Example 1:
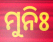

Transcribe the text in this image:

ମୁନିଃ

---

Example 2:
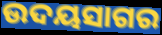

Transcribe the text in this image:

ଉଦୟସାଗର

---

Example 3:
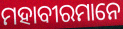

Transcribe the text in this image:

ମହାବୀରମାନେ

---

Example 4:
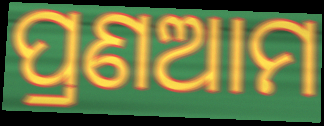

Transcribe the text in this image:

ପ୍ରଣଆମ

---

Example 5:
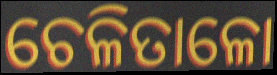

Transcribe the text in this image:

ଚେଳିତାଳୋ